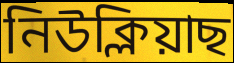
নিউক্লিয়াছ